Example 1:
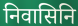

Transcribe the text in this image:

निवासिनि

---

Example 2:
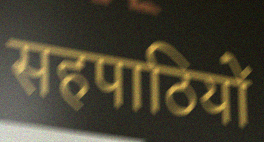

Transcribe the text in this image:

सहपाठियों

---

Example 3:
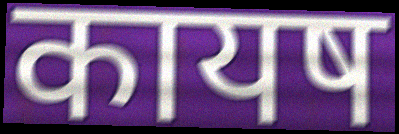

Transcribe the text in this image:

कायष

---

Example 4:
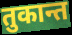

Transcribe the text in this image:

तुकान्त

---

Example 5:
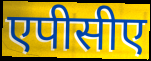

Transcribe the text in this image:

एपीसीए